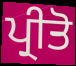
ਪ੍ਰੀਤੋ